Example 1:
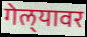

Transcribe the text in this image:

गेल्यावर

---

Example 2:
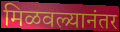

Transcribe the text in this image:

मिळवल्यानंतर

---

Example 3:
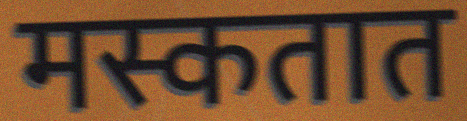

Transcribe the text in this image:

मस्कतात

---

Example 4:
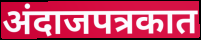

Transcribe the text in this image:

अंदाजपत्रकात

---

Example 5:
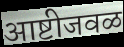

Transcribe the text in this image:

आष्टीजवळ